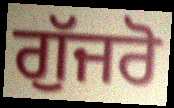
ਗੁੱਜਰੋ